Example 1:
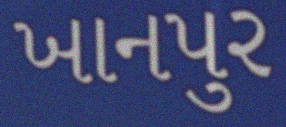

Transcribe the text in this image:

ખાનપુર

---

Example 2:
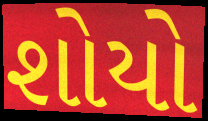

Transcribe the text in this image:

શોયો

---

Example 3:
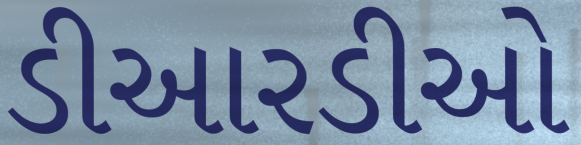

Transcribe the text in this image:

ડીઆરડીઓ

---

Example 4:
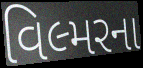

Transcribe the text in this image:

વિલ્મરના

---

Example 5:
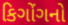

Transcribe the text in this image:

કિગોંગનો